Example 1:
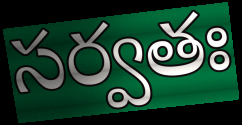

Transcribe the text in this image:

సర్వతః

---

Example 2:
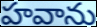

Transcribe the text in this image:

హవాను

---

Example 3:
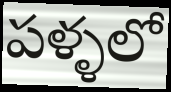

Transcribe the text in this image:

పళ్ళలో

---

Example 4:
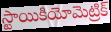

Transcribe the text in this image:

స్టాయికియోమెట్రిక్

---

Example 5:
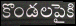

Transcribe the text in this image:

కొండలపైకి